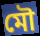
মৌ